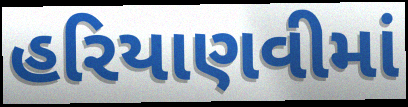
હરિયાણવીમાં